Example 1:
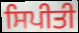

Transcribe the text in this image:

ਸਿਪੀਤੀ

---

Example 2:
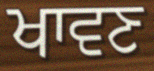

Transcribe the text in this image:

ਖਾਵਣ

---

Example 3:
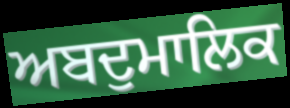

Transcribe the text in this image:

ਅਬਦੁਮਾਲਿਕ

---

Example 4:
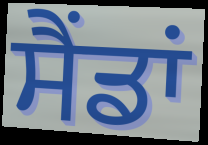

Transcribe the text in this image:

ਸੈਂਡਾਂ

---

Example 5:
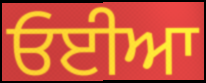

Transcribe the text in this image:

ਓਈਆ